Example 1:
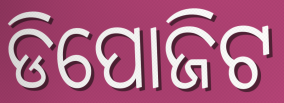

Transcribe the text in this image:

ଡିପୋଜିଟ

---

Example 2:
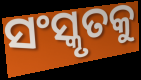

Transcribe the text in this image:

ସଂସ୍କୃତକୁ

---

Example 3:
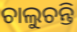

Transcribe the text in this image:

ଚାଲୁଚନ୍ତି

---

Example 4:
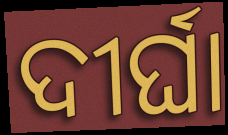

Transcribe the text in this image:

ଦୀର୍ଘା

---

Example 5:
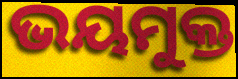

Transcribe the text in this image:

ଭୟମୁକ୍ତ